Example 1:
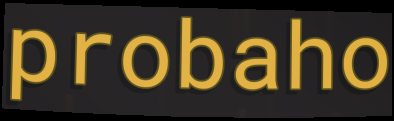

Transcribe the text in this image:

probaho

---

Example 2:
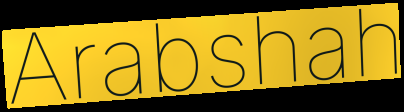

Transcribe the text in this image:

Arabshah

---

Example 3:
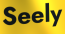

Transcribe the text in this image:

Seely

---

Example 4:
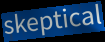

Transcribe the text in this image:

skeptical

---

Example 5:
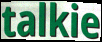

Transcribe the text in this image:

talkie